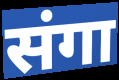
संगा